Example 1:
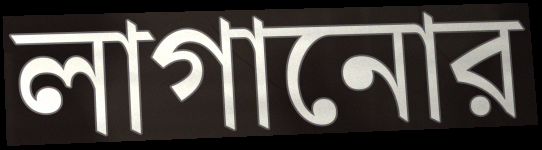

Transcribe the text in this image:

লাগানোর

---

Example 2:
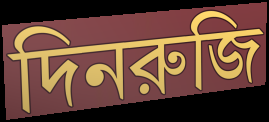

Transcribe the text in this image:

দিনরুজি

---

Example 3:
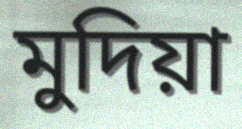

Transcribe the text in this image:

মুদিয়া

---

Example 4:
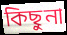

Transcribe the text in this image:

কিছুনা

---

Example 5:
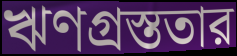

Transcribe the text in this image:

ঋণগ্রস্ততার